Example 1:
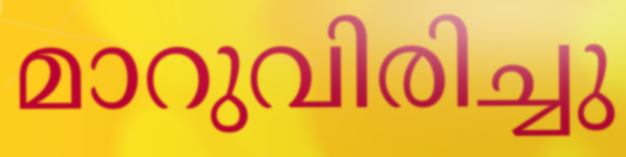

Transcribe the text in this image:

മാറുവിരിച്ചു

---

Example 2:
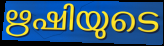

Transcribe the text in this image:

ഋഷിയുടെ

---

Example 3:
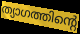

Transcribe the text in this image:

ത്യാഗത്തിന്റെ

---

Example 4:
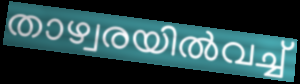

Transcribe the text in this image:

താഴ്വരയിൽവച്ച്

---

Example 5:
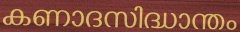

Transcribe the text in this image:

കണാദസിദ്ധാന്തം